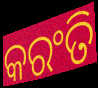
କରଂତି